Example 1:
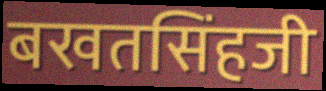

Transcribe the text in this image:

बखतसिंहजी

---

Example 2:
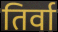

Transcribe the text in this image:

तिर्वा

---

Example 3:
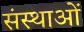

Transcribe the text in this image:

संस्‍थाओं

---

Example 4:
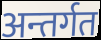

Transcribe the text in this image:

अन्‍तर्गत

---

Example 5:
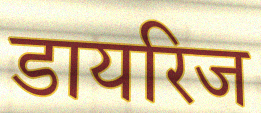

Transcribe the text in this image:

डायरिज